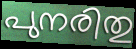
പുനരിതു